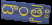
దాంతైః